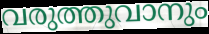
വരുത്തുവാനും